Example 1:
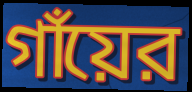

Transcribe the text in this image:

গাঁয়ের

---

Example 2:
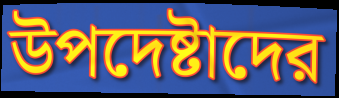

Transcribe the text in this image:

উপদেষ্টাদের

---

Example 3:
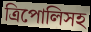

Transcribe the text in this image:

ত্রিপোলিসহ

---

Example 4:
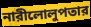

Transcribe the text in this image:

নারীলোলুপতার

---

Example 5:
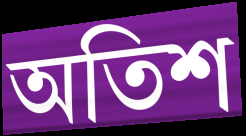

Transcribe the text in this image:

অতিশ